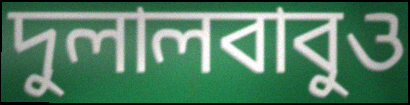
দুলালবাবুও